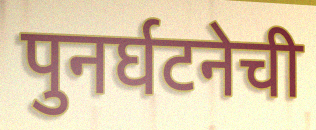
पुनर्घटनेची